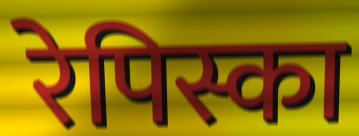
रेपिस्का